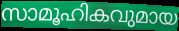
സാമൂഹികവുമായ